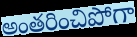
అంతరించిపోగా